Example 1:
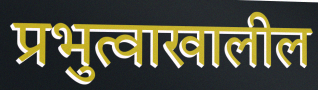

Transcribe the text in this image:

प्रभुत्वाखालील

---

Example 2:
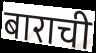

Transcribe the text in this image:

बाराची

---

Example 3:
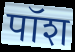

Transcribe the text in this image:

पॉश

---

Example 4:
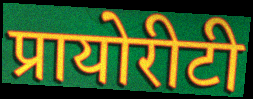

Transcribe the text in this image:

प्रायोरीटी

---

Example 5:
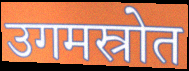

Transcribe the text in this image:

उगमस्रोत